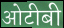
ओटीबी